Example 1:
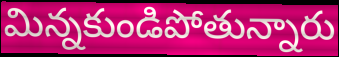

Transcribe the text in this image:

మిన్నకుండిపోతున్నారు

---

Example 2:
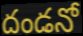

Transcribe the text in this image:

దండనో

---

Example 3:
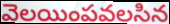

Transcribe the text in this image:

వెలయింపవలసిన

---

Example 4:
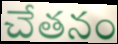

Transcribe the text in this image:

చేతనం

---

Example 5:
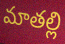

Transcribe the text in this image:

మాతల్లి